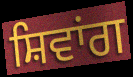
ਸ਼ਿਵਾਂਗ